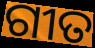
ଗୀତ